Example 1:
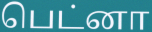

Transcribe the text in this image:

பெட்னா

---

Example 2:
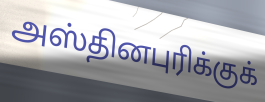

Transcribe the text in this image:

அஸ்தினபுரிக்குக்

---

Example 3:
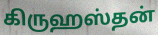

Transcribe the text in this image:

கிருஹஸ்தன்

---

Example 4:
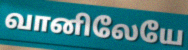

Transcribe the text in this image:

வானிலேயே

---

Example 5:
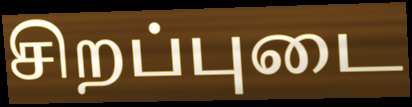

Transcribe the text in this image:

சிறப்புடை